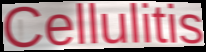
Cellulitis